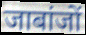
जाबांजों